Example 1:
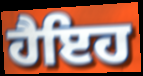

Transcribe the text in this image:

ਹੈਇਹ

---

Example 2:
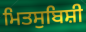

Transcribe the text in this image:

ਮਿਤਸੁਬਿਸ਼ੀ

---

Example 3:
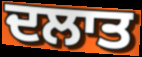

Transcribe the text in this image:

ਦਲਾਤ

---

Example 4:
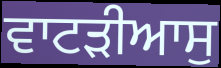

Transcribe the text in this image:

ਵਾਟੜੀਆਸੁ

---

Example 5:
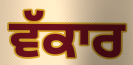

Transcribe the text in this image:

ਵੱਕਾਰ